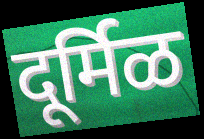
दूर्मिळ